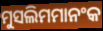
ମୁସଲିମମାନଂକ